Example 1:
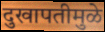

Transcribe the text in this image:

दुखापतीमुळे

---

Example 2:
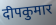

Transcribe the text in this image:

दीपकुमार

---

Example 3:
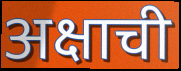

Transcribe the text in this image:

अक्षाची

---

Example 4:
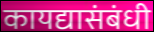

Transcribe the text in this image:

कायद्यासंबंधी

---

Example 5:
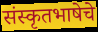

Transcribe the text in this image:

संस्कृतभाषेचे